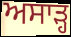
ਅਸਾੜ੍ਹ